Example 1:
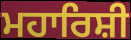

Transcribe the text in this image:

ਮਹਾਰਿਸ਼ੀ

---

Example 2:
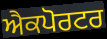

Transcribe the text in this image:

ਐਕਪੋਰਟਰ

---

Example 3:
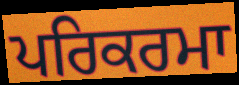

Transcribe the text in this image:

ਪਰਿਕਰਮਾ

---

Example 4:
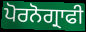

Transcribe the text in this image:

ਪੋਰਨੋਗ੍ਰਾਫੀ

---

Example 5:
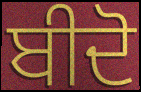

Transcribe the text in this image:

ਬੀਦੋ